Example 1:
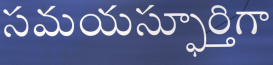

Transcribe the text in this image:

సమయస్ఫూర్తిగా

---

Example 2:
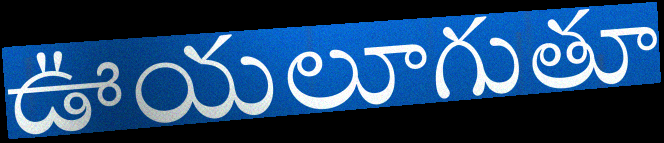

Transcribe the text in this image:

ఊయలూగుతూ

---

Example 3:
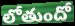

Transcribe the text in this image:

లోతుందో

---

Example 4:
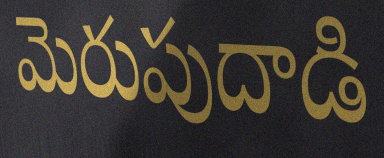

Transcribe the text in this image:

మెరుపుదాడి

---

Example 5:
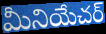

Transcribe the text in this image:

మీనియేచర్